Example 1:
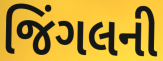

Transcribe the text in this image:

જિંગલની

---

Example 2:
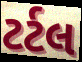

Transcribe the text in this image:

ટર્ટલ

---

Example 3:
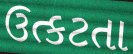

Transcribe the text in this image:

ઉત્કટતા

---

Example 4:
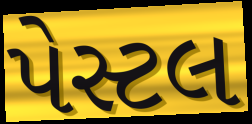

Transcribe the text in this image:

પેસ્ટલ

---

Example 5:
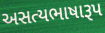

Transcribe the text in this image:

અસત્યભાષારૂપ